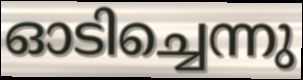
ഓടിച്ചെന്നു